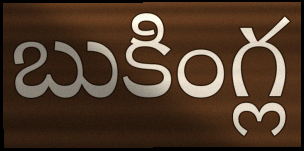
బుకింగ్ల